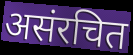
असंरचित